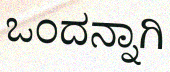
ಒಂದನ್ನಾಗಿ